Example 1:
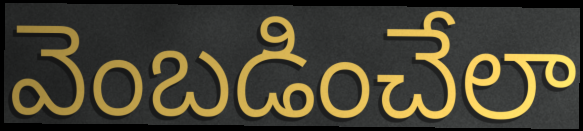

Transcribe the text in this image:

వెంబడించేలా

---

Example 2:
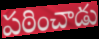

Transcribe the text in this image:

పఠించాడు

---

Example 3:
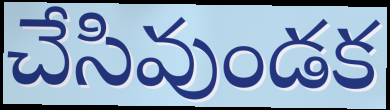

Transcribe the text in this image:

చేసివుండక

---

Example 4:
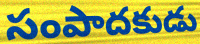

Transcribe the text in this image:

సంపాదకుడు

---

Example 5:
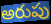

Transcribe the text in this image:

అరుపు